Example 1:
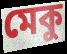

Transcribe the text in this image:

মেকু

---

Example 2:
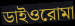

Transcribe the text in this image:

ডাইওরোমা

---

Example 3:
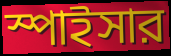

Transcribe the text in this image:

স্পাইসার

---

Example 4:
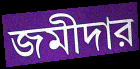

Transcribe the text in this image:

জমীদার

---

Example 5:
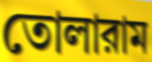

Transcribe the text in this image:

তোলারাম